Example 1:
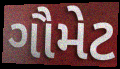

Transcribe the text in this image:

ગૌમેટ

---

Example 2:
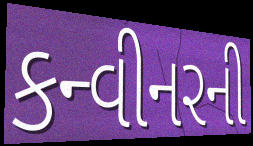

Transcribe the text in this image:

કન્વીનરની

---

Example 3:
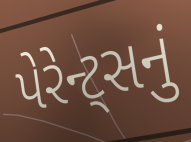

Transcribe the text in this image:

પેરેન્ટ્સનું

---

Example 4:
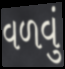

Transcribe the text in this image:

વળવું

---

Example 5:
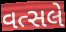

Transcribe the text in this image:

વત્સલે